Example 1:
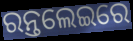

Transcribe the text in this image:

ରନ୍ତଲେଇରେ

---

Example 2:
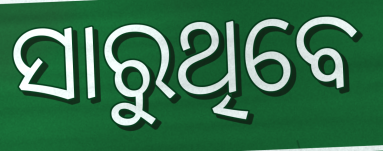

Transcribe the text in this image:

ସାରୁଥିବେ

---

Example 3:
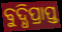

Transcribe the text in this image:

ବୁଦ୍ଧିପ୍ରାପ୍ତ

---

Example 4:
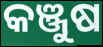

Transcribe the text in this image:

କଞ୍ଜୁଷ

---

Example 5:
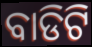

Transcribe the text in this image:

ବାଡିଟି